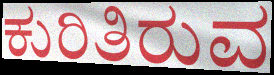
ಕುರಿತಿರುವ